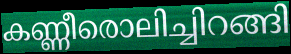
കണ്ണീരൊലിച്ചിറങ്ങി